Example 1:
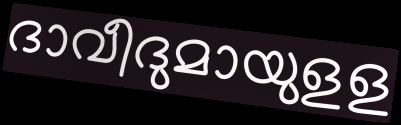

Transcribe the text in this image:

ദാവീദുമായുളള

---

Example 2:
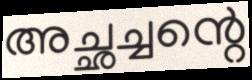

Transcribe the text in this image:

അച്ഛച്ചന്റെ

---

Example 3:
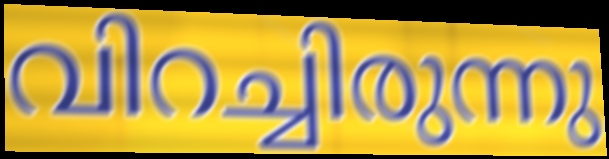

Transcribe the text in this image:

വിറച്ചിരുന്നു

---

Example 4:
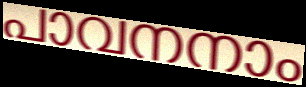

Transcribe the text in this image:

പാവനനാം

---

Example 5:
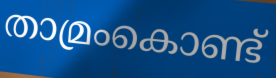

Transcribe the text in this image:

താമ്രംകൊണ്ട്